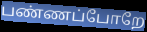
பண்ணப்போறே